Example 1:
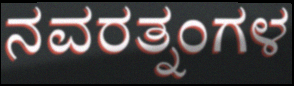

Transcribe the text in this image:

ನವರತ್ನಂಗಳ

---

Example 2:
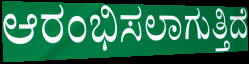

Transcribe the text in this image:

ಆರಂಭಿಸಲಾಗುತ್ತಿದೆ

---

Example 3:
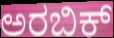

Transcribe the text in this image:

ಅರಬಿಕ್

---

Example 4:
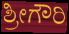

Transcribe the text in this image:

ಶ್ರೀಗೌರಿ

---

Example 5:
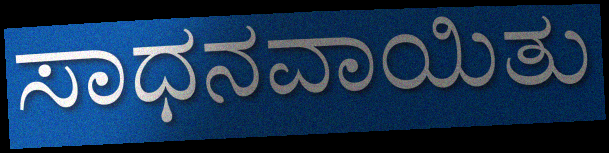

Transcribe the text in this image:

ಸಾಧನವಾಯಿತು